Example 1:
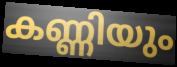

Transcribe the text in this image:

കണ്ണിയും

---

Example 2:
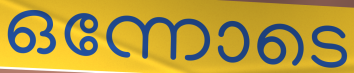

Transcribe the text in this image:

ഒന്നോടെ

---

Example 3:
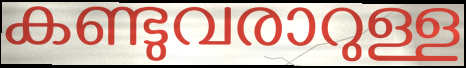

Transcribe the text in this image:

കണ്ടുവരാറുള്ള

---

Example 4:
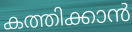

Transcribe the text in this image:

കത്തിക്കാൻ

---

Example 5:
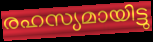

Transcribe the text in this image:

രഹസ്യമായിട്ടു